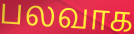
பலவாக